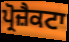
ਪ੍ਰੋਜ਼ੈਕਟਾ